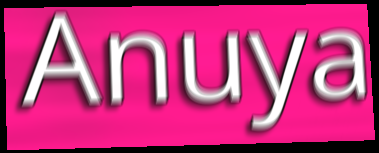
Anuya